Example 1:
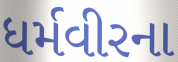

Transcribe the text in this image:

ધર્મવીરના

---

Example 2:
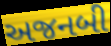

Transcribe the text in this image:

અજનબી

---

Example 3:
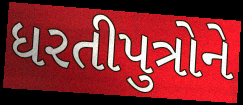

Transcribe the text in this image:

ધરતીપુત્રોને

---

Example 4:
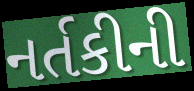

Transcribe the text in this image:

નર્તકીની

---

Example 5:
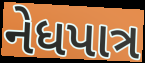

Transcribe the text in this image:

નેધપાત્ર